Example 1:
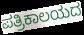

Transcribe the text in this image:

ಪತ್ರಿಕಾಲಯದ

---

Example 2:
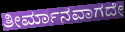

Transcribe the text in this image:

ತೀರ್ಮಾನವಾಗದೇ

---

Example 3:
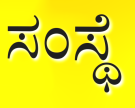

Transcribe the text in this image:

ಸಂಸ್ಥೆ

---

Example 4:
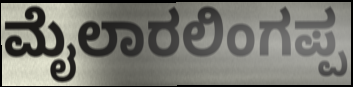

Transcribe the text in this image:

ಮೈಲಾರಲಿಂಗಪ್ಪ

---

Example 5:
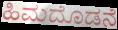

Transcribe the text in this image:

ಹಿಮದೊಡನೆ